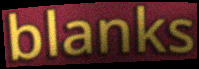
blanks